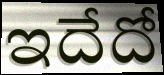
ఇదేదో